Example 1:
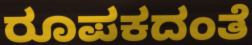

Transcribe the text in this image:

ರೂಪಕದಂತೆ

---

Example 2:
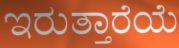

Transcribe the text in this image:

ಇರುತ್ತಾರೆಯೆ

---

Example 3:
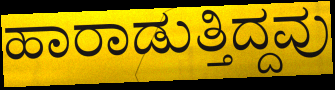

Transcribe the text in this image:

ಹಾರಾಡುತ್ತಿದ್ದವು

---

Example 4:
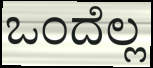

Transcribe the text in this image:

ಒಂದೆಲ್ಲ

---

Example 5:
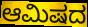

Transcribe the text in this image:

ಆಮಿಷದ